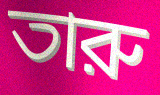
তাৰু